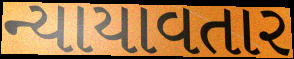
ન્યાયાવતાર